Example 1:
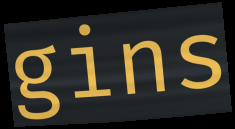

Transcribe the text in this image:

gins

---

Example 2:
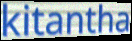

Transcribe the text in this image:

kitantha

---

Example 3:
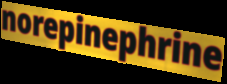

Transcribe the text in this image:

norepinephrine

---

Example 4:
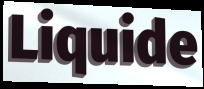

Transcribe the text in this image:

Liquide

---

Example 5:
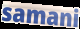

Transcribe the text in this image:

samani